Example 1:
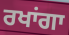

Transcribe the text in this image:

ਰਖਾਂਗਾ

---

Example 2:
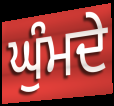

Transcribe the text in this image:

ਘੁੰਮਦੇ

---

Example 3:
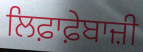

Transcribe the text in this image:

ਲਿਫ਼ਾਫ਼ੇਬਾਜ਼ੀ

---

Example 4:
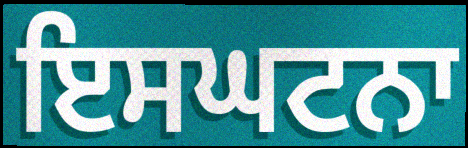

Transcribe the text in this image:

ਇਸਘਟਨਾ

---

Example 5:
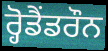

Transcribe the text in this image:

ਰ੍ਹੋਡੈਂਡਰੌਨ